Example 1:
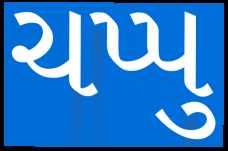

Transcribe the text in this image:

ચપ્પુ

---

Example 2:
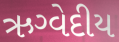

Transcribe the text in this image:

ઋગ્વેદીય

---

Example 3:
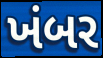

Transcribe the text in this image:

ખંબર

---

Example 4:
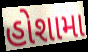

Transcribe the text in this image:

હોશામા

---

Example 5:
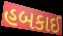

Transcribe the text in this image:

હબકાઈ